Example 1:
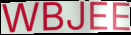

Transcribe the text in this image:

WBJEE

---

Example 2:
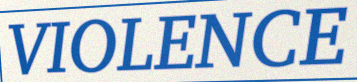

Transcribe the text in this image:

VIOLENCE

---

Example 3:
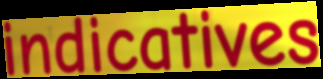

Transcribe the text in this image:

indicatives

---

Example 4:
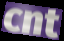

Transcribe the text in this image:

cnt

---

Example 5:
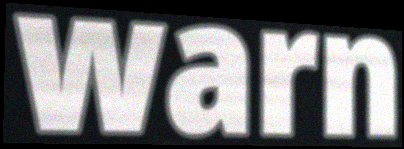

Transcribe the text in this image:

warn